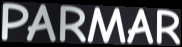
PARMAR